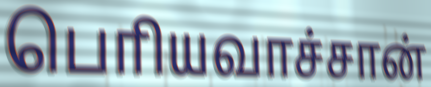
பெரியவாச்சான்